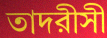
তাদরীসী